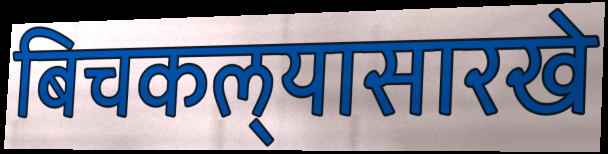
बिचकल्यासारखे